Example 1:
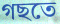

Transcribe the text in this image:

গছতে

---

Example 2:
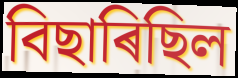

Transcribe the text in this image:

বিছাৰিছিল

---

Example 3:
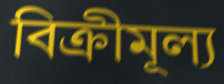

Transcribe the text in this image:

বিক্ৰীমূল্য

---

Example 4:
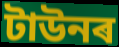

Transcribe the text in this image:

টাউনৰ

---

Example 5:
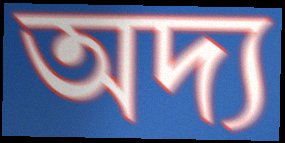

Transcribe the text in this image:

অদ্য